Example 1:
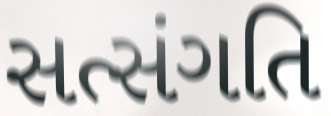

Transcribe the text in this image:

સત્સંગતિ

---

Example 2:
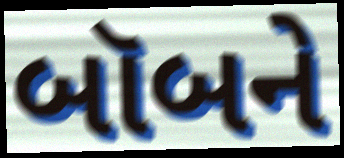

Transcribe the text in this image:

બૉબને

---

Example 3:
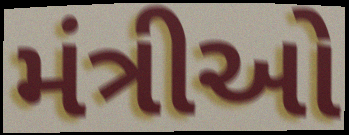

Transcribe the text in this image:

મંત્રીઓ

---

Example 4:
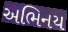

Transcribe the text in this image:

અભિનય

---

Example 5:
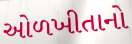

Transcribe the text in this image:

ઓળખીતાનો